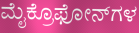
ಮೈಕ್ರೊಫೋನ್‌ಗಳ